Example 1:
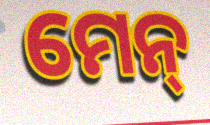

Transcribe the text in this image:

ମେନ୍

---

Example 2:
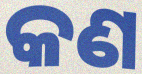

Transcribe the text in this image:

କଣ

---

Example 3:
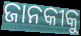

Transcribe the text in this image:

ଜାନକୀକୁ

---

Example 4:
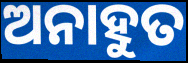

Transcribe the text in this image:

ଅନାହୁତ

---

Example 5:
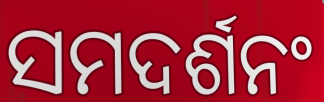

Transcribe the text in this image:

ସମଦର୍ଶନଂ